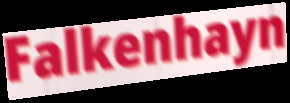
Falkenhayn